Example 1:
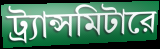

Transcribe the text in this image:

ট্র্যান্সমিটারে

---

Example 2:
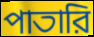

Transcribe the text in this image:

পাতারি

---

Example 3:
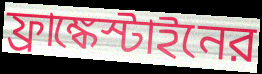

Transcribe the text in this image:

ফ্রাঙ্কেস্টাইনের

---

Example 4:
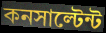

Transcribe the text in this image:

কনসাল্টেন্ট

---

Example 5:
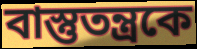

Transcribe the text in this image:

বাস্তুতন্ত্রকে